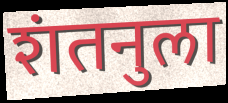
शंतनुला